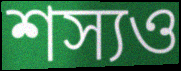
শস্যও